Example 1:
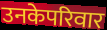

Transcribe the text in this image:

उनकेपरिवार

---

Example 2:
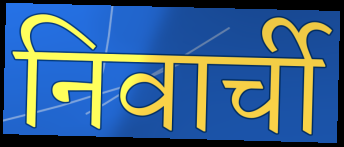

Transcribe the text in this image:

निवार्ची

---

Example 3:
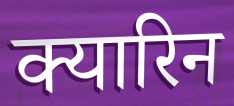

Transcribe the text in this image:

क्यारिन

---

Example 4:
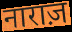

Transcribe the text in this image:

नाराज़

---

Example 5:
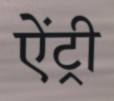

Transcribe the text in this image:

ऐंट्री